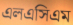
এলএসিএম